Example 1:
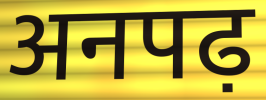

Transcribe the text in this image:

अनपढ़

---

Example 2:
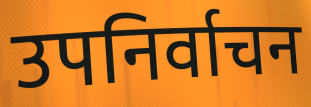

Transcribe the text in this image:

उपनिर्वाचन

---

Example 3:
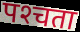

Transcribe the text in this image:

पश्चता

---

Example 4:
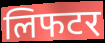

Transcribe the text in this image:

लिफटर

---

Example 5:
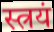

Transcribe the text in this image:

स्त्रयं